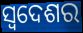
ସ୍ଵଦେଶର